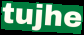
tujhe